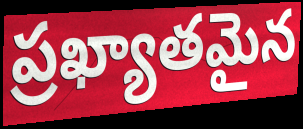
ప్రఖ్యాతమైన